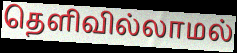
தெளிவில்லாமல்